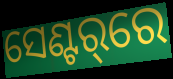
ସେଣ୍ଟର୍‌ରେ